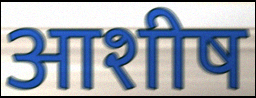
आशीष